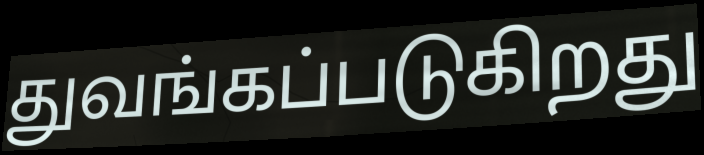
துவங்கப்படுகிறது